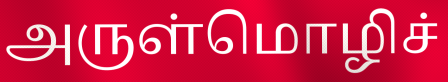
அருள்மொழிச்